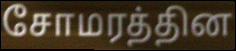
சோமரத்தின